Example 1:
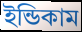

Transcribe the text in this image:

ইন্ডিকাম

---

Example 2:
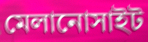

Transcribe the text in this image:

মেলানোসাইট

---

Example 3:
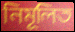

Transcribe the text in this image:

নির্মূলিত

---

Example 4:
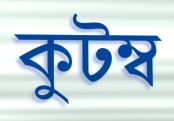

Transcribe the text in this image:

কুটম্ব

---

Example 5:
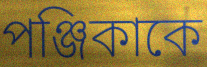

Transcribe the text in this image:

পঞ্জিকাকে